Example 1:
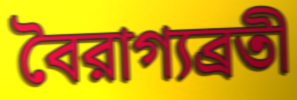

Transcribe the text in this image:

বৈরাগ্যব্রতী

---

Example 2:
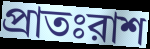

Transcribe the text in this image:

প্রাতঃরাশ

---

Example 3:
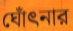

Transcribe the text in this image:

ঘোঁৎনার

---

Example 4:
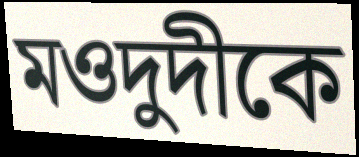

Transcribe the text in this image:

মওদুদীকে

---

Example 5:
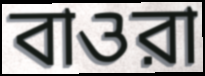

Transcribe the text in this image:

বাওরা